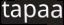
tapaa